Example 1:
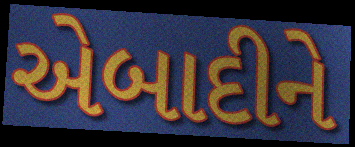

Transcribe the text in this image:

એબાદીને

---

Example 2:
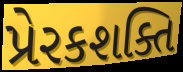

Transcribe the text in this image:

પ્રેરકશક્તિ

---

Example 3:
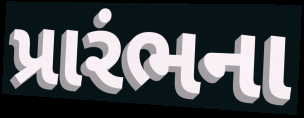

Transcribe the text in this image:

પ્રારંભના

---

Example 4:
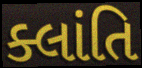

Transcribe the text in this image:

ક્લાંતિ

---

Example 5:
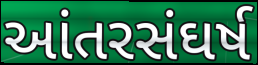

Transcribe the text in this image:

આંતરસંઘર્ષ